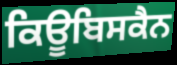
ਕਿਊਬਿਸਕੈਨ